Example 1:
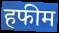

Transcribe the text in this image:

हफीम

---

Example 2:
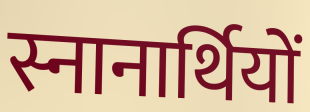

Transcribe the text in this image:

स्नानार्थियों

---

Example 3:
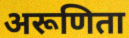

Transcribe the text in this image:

अरूणिता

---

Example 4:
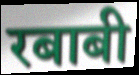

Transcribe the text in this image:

रबाबी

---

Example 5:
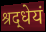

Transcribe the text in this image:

श्रद्धेयं